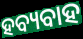
ହବ୍ୟବାହ